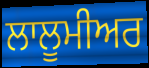
ਲਾਲੂਮੀਅਰ